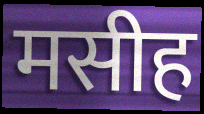
मसीह